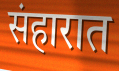
संहारात